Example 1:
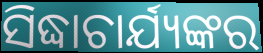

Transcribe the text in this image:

ସିଦ୍ଧାଚାର୍ଯ୍ୟଙ୍କର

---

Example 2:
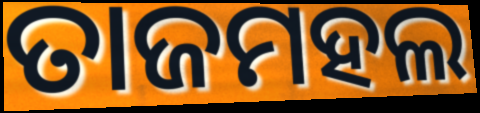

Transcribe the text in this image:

ତାଜମହଲ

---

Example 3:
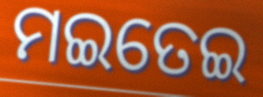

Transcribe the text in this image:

ମଇତେଇ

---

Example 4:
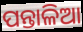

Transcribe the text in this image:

ପନ୍ତାଳିଆ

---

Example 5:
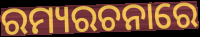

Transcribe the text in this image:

ରମ୍ୟରଚନାରେ